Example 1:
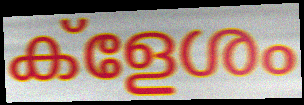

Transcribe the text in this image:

ക്ളേശം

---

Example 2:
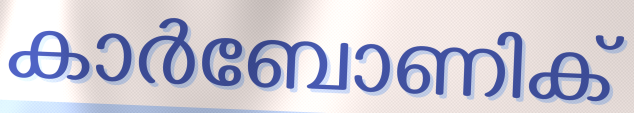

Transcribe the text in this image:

കാർബോണിക്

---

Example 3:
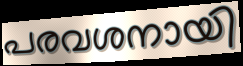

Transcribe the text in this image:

പരവശനായി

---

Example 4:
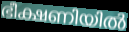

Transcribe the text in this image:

ഭീക്ഷണിയിൽ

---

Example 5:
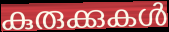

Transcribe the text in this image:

കുരുക്കുകൾ